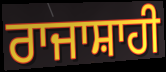
ਰਾਜਾਸ਼ਾਹੀ